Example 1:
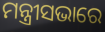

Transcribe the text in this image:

ମନ୍ତ୍ରୀସଭାରେ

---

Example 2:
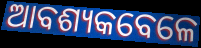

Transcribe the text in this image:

ଆବଶ୍ୟକବେଳେ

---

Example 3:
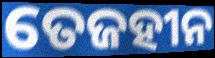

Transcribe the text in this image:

ତେଜହୀନ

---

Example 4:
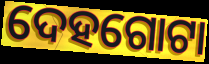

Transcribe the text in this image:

ଦେହଗୋଟା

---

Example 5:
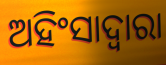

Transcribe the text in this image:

ଅହିଂସାଦ୍ୱାରା